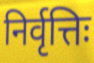
निर्वृत्तिः